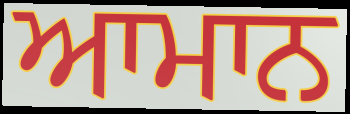
ਆਮਾਨ